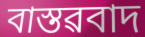
বাস্তৱবাদ